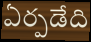
ఏర్పడేది